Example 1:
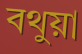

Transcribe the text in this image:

বথুয়া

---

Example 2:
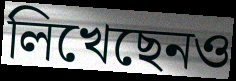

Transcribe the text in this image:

লিখেছেনও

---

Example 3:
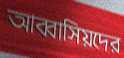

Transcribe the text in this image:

আব্বাসিয়দের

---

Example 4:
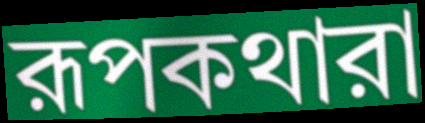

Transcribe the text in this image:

রূপকথারা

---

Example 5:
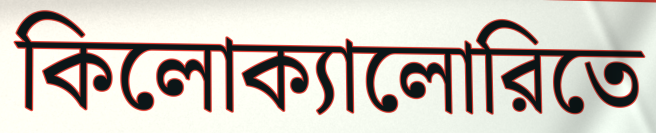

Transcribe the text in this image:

কিলোক্যালোরিতে